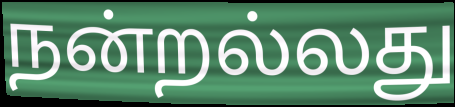
நன்றல்லது